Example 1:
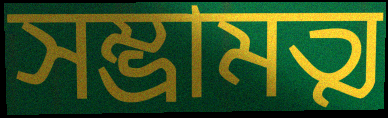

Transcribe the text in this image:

সম্ভ্রামত্ম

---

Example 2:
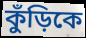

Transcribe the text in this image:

কুঁড়িকে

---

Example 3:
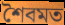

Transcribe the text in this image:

শৈবমত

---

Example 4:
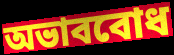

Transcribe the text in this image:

অভাববোধ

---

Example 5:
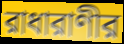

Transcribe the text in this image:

রাধারাণীর